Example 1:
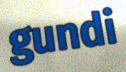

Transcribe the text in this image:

gundi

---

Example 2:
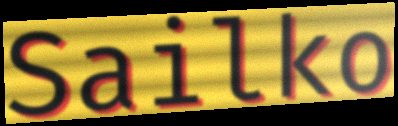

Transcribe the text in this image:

Sailko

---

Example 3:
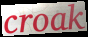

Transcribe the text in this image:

croak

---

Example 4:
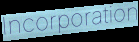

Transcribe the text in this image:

Incorporation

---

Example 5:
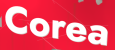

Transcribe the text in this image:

Corea